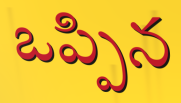
ఒప్పిన